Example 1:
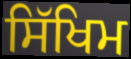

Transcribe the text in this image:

ਸਿੱਖਿਮ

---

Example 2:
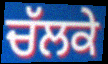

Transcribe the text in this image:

ਚੱਲਕੇ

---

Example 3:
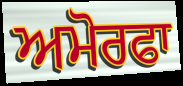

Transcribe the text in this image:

ਅਮੋਰਫਾ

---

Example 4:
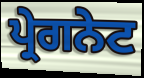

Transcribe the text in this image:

ਪ੍ਰੇਗਨੇਟ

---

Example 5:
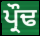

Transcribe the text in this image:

ਪ੍ਰੌਢ